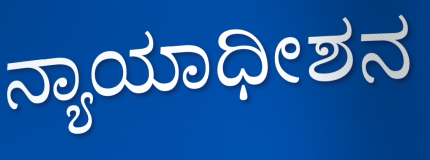
ನ್ಯಾಯಾಧೀಶನ